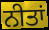
ਨੀਤਾਂ